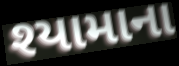
શ્યામાના